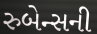
રુબેન્સની